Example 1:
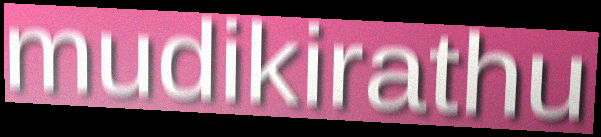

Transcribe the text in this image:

mudikirathu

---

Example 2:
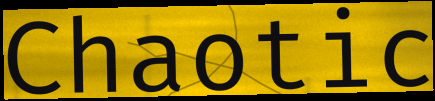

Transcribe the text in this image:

Chaotic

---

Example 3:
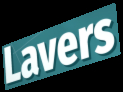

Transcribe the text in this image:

Lavers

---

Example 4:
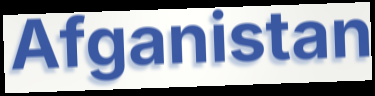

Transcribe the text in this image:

Afganistan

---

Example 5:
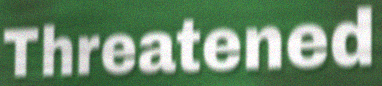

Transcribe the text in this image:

Threatened